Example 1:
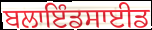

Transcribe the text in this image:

ਬਲਾਇੰਡਸਾਈਡ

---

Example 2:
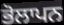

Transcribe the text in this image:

ਭੋਲਾਪਨ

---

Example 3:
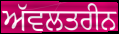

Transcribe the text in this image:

ਅੱਵਲਤਰੀਨ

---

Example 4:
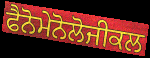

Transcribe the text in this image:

ਫੈਨੋਮੇਨੋਲੋਜੀਕਲ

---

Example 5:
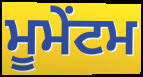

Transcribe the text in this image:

ਮੂਮੇਂਟਮ